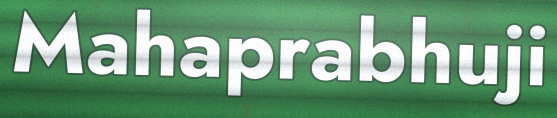
Mahaprabhuji